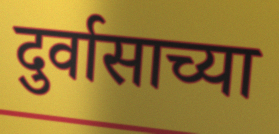
दुर्वासाच्या